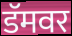
डॅमवर